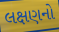
લક્ષણનો